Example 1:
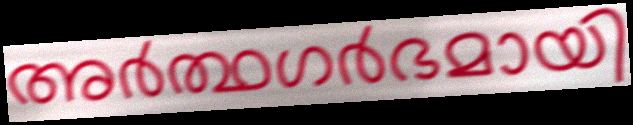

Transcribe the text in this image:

അർത്ഥഗർഭമായി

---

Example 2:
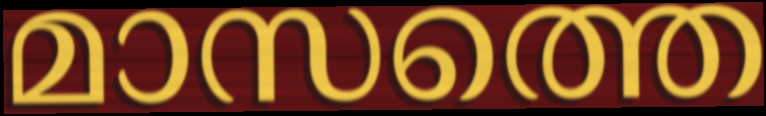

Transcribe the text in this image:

മാസത്തെ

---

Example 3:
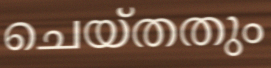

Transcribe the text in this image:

ചെയ്തതും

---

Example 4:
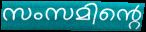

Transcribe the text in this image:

സംസമിന്റെ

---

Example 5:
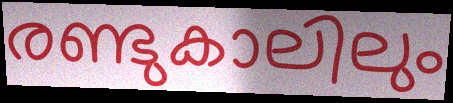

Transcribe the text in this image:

രണ്ടുകാലിലും